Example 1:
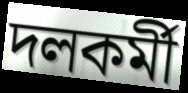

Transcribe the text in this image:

দলকর্মী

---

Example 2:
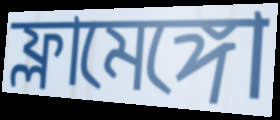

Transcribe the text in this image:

ফ্লামেঙ্গো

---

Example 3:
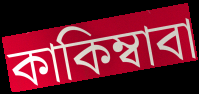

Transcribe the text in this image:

কাকিম্বাবা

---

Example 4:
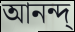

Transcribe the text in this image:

আনন্দ্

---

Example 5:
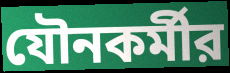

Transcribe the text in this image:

যৌনকর্মীর